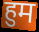
हुम